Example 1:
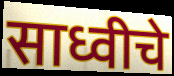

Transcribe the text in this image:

साध्वीचे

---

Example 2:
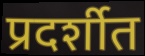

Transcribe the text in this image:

प्रदर्शीत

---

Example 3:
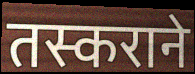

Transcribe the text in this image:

तस्कराने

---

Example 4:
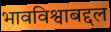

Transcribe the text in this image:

भावविश्वाबद्दल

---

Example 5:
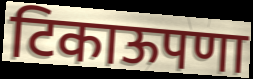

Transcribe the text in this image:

टिकाऊपणा